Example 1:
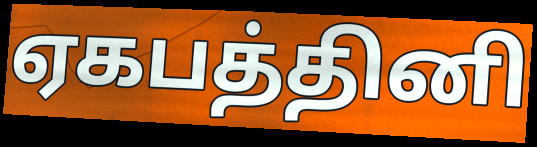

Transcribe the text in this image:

ஏகபத்தினி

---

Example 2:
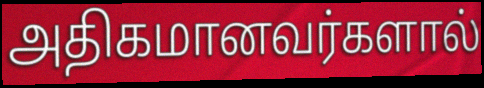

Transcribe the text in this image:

அதிகமானவர்களால்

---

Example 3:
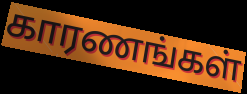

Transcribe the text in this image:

காரணங்கள்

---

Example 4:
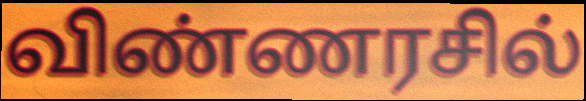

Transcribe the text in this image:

விண்ணரசில்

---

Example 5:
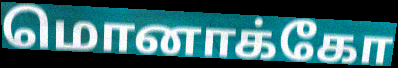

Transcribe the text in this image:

மொனாக்கோ